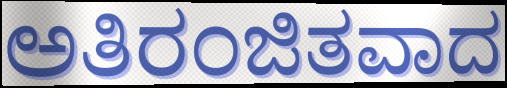
ಅತಿರಂಜಿತವಾದ